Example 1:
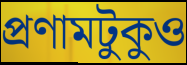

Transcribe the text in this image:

প্রণামটুকুও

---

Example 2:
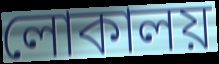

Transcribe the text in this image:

লোকালয়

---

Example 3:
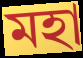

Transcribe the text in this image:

মহা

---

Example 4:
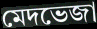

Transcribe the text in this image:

মেদভেজা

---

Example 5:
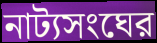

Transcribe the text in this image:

নাট্যসংঘের